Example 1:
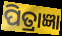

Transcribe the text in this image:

ପିତ୍ରାଜ୍ଞା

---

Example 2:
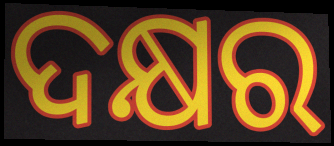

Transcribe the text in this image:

ଦକ୍ଷର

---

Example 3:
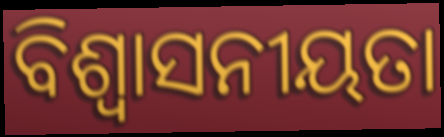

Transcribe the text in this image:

ବିଶ୍ୱାସନୀୟତା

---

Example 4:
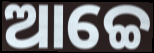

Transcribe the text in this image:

ଆଚ୍ଚେ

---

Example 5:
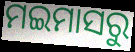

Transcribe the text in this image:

ମଇମାସରୁ